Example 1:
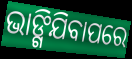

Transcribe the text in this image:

ଭାଙ୍ଗିଯିବାପରେ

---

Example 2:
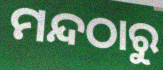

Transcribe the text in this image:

ମନ୍ଦଠାରୁ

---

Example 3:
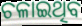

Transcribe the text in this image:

ଚଳାଇଥିବ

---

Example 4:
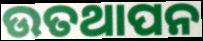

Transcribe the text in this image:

ଉତଥାପନ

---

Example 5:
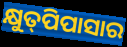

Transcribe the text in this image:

କ୍ଷୁତ୍‍ପିପାସାର